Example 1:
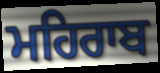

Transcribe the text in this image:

ਮਹਿਰਾਬ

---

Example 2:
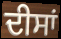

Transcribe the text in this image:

ਦੀਸਾਂ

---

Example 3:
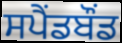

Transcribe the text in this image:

ਸਪੈਂਡਬੌਂਡ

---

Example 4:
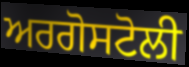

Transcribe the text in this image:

ਅਰਗੋਸਟੋਲੀ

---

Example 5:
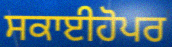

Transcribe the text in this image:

ਸਕਾਈਹੋਪਰ